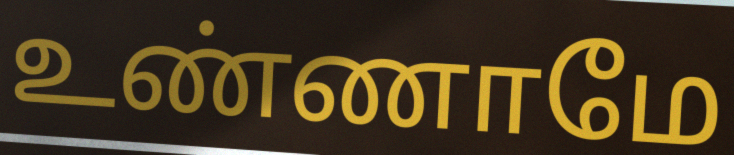
உண்ணாமே